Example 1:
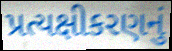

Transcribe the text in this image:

પ્રત્યક્ષીકરણનું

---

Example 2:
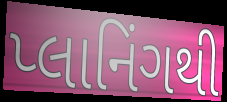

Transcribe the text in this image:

પ્લાનિંગથી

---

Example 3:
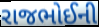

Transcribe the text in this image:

રાજભોઈની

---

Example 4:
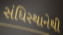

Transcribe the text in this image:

સંધિસ્થાનેથી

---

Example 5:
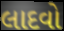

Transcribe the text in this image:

લાદવો